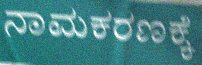
ನಾಮಕರಣಕ್ಕೆ